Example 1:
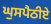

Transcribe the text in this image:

ਘੁਸਪੈਠੀਏ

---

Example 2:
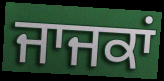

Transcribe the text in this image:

ਜਾਜਕਾਂ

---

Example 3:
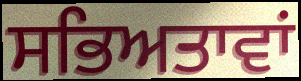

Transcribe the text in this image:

ਸਭਿਅਤਾਵਾਂ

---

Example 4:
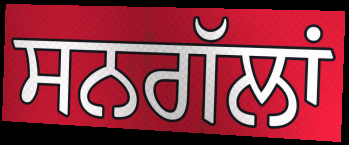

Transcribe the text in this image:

ਸਨਗੱਲਾਂ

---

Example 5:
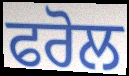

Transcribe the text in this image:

ਫਰੋਲ